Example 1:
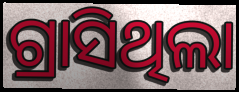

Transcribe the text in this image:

ଗ୍ରାସିଥିଲା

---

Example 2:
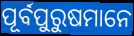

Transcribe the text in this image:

ପୂର୍ବପୁରୁଷମାନେ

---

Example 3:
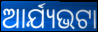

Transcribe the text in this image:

ଆର୍ଯ୍ୟଭଟା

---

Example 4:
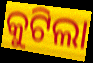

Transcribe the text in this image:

କୁଟିଲା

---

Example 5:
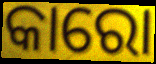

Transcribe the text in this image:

କାରୋ